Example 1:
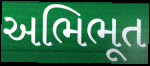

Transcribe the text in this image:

અભિભૂત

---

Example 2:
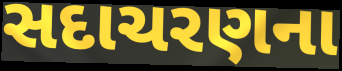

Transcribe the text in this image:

સદાચરણના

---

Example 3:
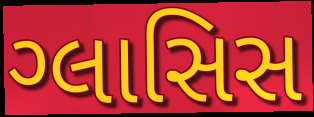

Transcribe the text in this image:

ગ્લાસિસ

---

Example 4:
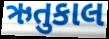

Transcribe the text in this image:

ઋતુકાલ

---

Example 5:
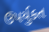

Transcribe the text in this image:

ઉપર્યુકત